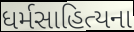
ધર્મસાહિત્યના